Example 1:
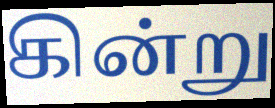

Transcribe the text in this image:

கின்று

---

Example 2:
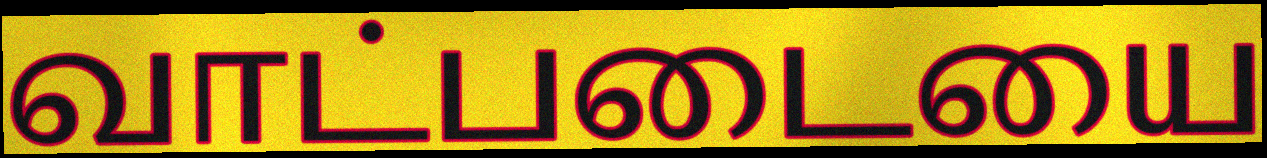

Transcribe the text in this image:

வாட்படையை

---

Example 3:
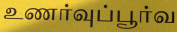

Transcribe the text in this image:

உணர்வுப்பூர்வ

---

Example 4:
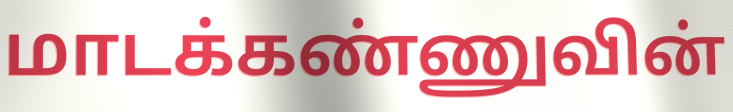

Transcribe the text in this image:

மாடக்கண்ணுவின்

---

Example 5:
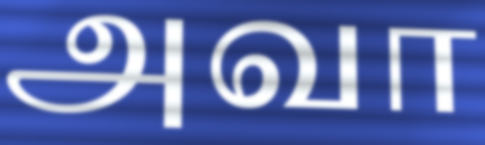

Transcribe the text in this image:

அவா